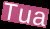
Tua